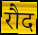
रौद